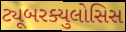
ટ્યૂબરક્યુલોસિસ